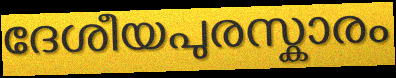
ദേശീയപുരസ്കാരം